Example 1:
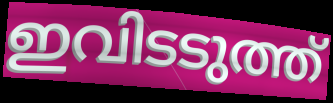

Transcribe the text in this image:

ഇവിടടുത്ത്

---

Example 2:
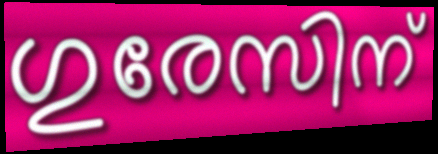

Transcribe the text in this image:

ഗുരേസിന്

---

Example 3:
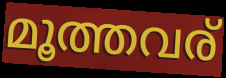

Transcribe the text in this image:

മൂത്തവര്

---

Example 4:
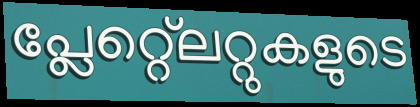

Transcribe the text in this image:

പ്ലേറ്റ്ലെറ്റുകളുടെ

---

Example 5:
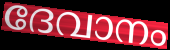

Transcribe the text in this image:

ദേവാനം